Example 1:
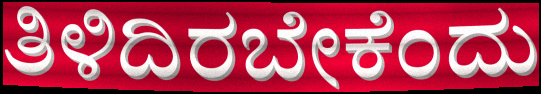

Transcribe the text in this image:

ತಿಳಿದಿರಬೇಕೆಂದು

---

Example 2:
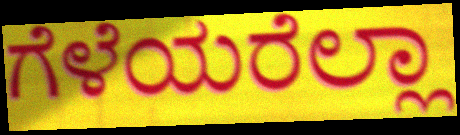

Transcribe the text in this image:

ಗೆಳೆಯರೆಲ್ಲಾ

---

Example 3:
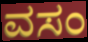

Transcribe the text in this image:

ವಸಂ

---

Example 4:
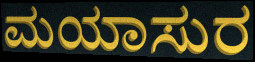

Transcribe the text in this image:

ಮಯಾಸುರ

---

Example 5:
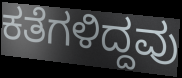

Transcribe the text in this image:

ಕತೆಗಳಿದ್ದವು